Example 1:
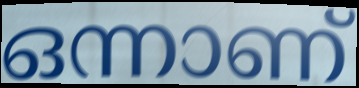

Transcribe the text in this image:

ഒന്നാണ്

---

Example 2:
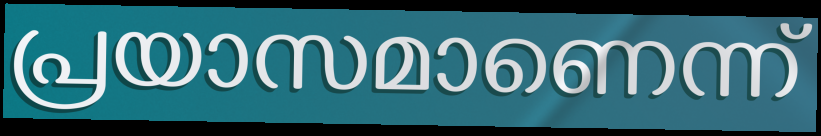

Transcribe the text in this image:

പ്രയാസമാണെന്ന്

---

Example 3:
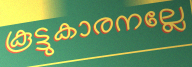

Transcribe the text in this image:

കൂട്ടുകാരനല്ലേ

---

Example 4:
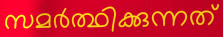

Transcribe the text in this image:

സമർത്ഥിക്കുന്നത്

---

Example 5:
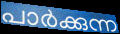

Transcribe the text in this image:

പാർക്കുന്ന